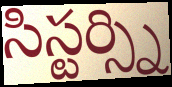
సిస్టర్స్ని